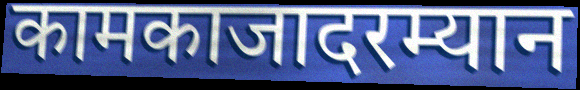
कामकाजादरम्यान